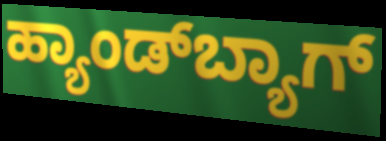
ಹ್ಯಾಂಡ್‌ಬ್ಯಾಗ್